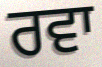
ਰਵਾ